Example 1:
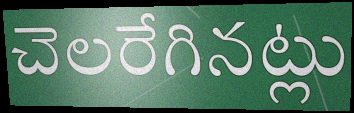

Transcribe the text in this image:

చెలరేగినట్లు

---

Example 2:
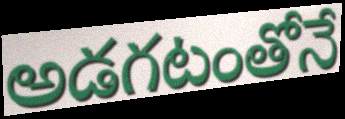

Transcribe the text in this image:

అడగటంతోనే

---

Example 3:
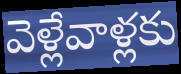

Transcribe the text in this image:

వెళ్లేవాళ్లకు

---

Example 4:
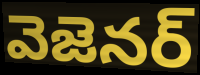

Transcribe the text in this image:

వెజెనర్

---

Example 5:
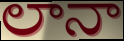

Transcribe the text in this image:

లానా